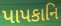
પાપકાનિ